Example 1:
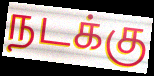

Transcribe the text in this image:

நடக்கு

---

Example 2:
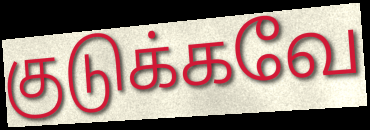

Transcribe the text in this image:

குடுக்கவே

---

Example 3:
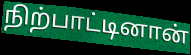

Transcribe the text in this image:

நிற்பாட்டினான்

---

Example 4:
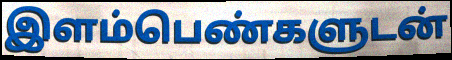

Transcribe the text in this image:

இளம்பெண்களுடன்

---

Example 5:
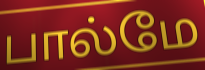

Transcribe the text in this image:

பால்மே